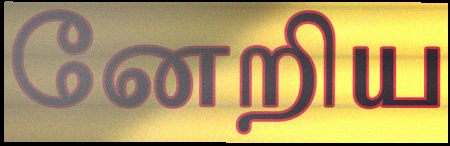
னேறிய